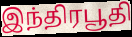
இந்திரபூதி